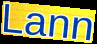
Lann